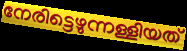
നേരിട്ടെഴുന്നള്ളിയത്